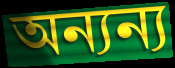
অন্যন্য